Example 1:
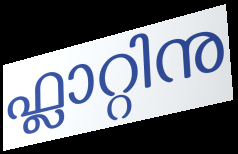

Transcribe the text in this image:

ഫ്ലാറ്റിനു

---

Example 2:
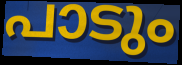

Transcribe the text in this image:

പാടും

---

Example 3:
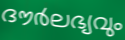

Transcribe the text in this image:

ദൗർലഭ്യവും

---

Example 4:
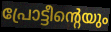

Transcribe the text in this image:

പ്രോട്ടീന്റെയും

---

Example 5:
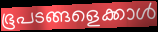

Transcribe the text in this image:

ഭൂപടങ്ങളെക്കാൾ